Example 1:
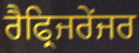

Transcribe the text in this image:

ਰੈਫ੍ਰਿਜਰੇਂਜਰ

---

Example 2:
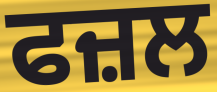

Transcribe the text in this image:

ਫਜ਼ਲ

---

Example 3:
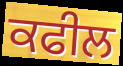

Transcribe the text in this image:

ਕਫੀਲ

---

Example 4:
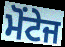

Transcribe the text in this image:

ਮੋਂਟੇਜ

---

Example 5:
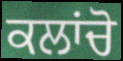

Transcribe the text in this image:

ਕਲਾਂਚੋ